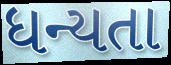
ધન્યતા